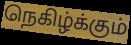
நெகிழ்க்கும்